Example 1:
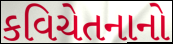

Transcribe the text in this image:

કવિચેતનાનો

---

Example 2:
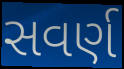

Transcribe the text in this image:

સવર્ણ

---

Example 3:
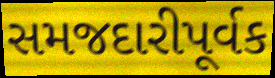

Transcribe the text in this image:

સમજદારીપૂર્વક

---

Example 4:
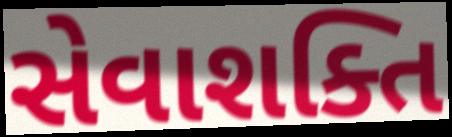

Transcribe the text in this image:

સેવાશક્તિ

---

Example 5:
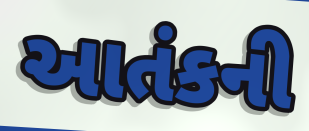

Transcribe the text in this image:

આતંકની